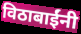
विठाबाईंनी